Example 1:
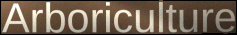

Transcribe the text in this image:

Arboriculture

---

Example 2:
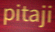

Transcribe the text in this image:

pitaji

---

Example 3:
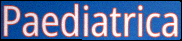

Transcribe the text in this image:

Paediatrica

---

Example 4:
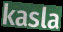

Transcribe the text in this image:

kasla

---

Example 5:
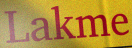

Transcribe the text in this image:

Lakme